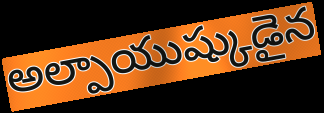
అల్పాయుష్కుడైన